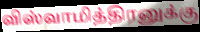
விஸ்வாமித்திரனுக்கு